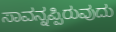
ಸಾವನ್ನಪ್ಪಿರುವುದು